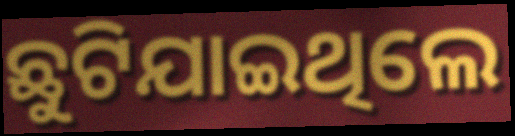
ଛୁଟିଯାଇଥିଲେ